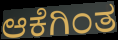
ಆಕೆಗಿಂತ